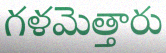
గళమెత్తారు